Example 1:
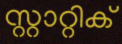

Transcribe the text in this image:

സ്റ്റാറ്റിക്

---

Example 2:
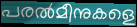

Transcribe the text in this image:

പരൽമീനുകളെ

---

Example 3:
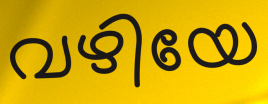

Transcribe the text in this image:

വഴിയേ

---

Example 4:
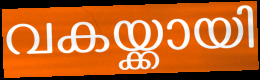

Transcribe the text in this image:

വകയ്ക്കായി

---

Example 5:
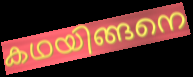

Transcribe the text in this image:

കഥയിങ്ങനെ